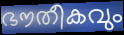
ഭൗതീകവും